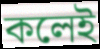
কলেই